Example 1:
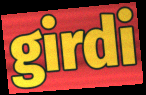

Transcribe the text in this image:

girdi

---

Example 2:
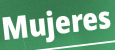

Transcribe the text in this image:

Mujeres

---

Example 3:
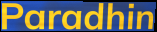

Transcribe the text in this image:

Paradhin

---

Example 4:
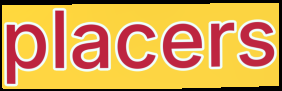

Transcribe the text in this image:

placers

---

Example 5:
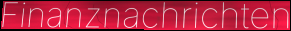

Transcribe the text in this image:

Finanznachrichten